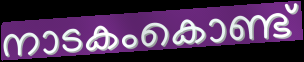
നാടകംകൊണ്ട്